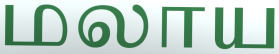
மலாய